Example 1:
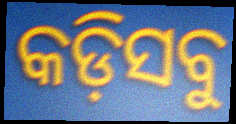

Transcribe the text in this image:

କଡ଼ିସବୁ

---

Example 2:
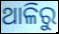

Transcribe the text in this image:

ଥାଳିରୁ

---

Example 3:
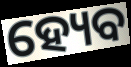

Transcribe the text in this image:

ହ୍ୟେବ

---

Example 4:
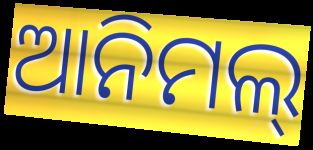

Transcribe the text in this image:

ଆନିମଲ୍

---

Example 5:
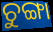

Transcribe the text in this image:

ଚୁଙ୍ଗା